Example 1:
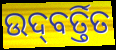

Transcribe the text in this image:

ଉଦ୍‌ବର୍ତ୍ତିତ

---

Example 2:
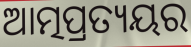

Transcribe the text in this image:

ଆତ୍ମପ୍ରତ୍ୟୟର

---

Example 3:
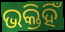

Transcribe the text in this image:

ଭକ୍ତିହିଁ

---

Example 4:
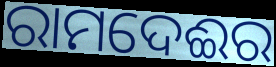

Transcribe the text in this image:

ରାମଦେଈର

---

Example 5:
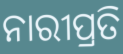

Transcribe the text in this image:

ନାରୀପ୍ରତି